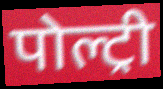
पोल्ट्री